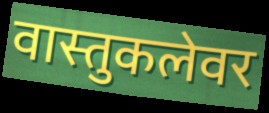
वास्तुकलेवर